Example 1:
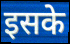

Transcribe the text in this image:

इसके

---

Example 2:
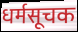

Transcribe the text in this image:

धर्मसूचक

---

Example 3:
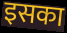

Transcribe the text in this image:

इसका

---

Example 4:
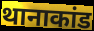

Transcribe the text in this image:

थानाकांड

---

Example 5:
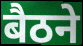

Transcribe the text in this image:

बैठने